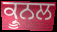
ਕ੍ਰੂਨਲ